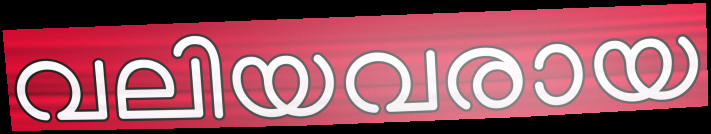
വലിയവരായ